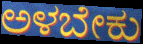
ಅಳಬೇಕು